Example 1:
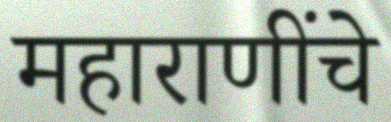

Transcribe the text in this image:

महाराणींचे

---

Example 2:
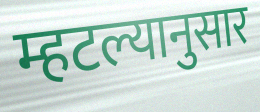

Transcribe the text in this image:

म्हटल्यानुसार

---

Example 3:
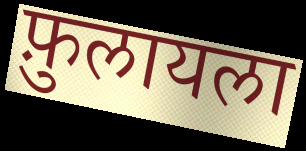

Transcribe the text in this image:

फ़ुलायला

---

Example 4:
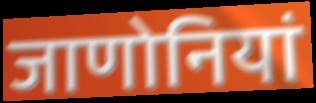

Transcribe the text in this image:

जाणोनियां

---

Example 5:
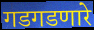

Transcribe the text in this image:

गडगडणारे